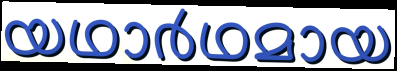
യഥാർഥമായ